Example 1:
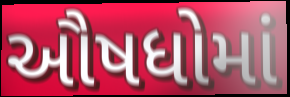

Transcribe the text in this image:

ઔષધોમાં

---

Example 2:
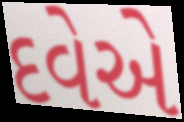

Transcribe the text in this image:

દવેએ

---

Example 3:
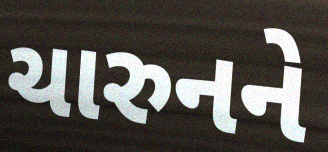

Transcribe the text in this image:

ચારુનને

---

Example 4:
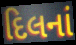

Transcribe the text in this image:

દિલનાં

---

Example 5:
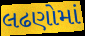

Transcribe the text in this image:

લઢણોમાં